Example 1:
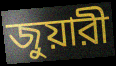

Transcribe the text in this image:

জুয়ারী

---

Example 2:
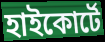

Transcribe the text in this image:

হাইকোর্টে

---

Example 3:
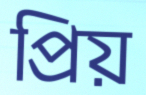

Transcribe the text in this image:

প্রিয়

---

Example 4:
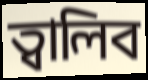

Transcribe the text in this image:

ত্বালিব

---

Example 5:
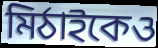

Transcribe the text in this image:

মিঠাইকেও